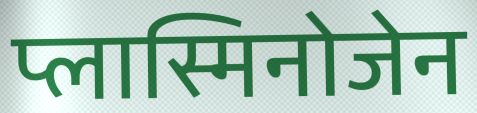
प्लास्मिनोजेन